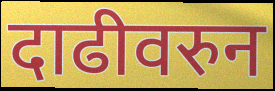
दाढीवरुन